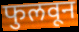
फुलवून